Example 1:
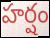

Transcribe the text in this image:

హర్షం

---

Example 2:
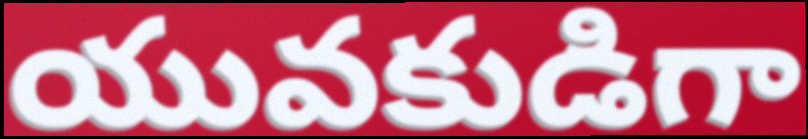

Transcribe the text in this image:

యువకుడిగా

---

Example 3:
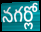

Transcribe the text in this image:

నగర్లో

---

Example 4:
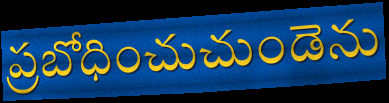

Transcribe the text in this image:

ప్రబోధించుచుండెను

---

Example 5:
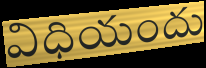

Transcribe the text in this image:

విధియందు